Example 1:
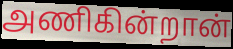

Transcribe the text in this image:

அணிகின்றான்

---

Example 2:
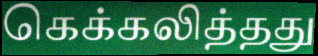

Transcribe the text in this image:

கெக்கலித்தது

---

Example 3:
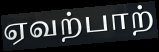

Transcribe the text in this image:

ஏவற்பாற்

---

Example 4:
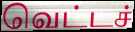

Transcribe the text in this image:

வெட்டச்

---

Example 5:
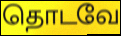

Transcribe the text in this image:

தொடவே